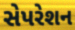
સેપરેશન